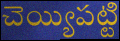
చెయ్యిపట్టి